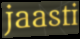
jaasti